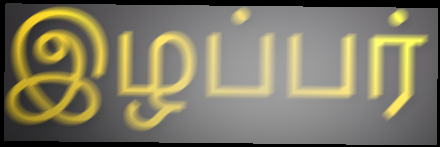
இழப்பர்